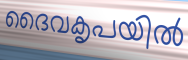
ദൈവകൃപയിൽ